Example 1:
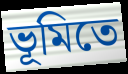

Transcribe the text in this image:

ভূমিতে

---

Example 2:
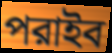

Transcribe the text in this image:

পরাইব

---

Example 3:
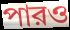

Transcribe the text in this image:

পারও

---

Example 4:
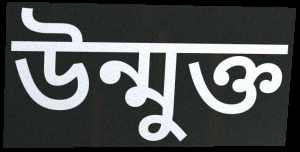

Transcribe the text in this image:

উন্মুক্ত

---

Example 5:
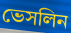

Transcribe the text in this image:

ভেসলিন